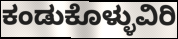
ಕಂಡುಕೊಳ್ಳುವಿರಿ